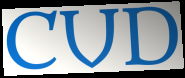
CUD